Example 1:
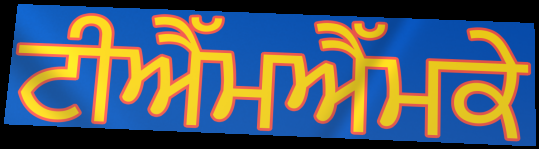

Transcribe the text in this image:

ਟੀਐੱਮਐੱਮਕੇ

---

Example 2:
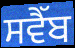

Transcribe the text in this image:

ਸਵੈੱਬ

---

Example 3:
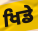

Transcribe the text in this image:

ਖਿਡੇ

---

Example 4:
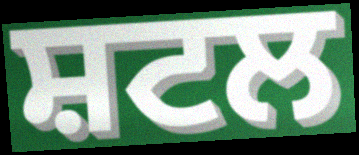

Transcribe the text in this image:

ਸ਼ਟਲ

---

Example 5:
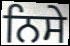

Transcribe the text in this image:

ਨਿਸੇ